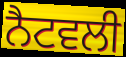
ਨੈਟਵਲੀ